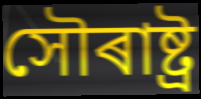
সৌৰাষ্ট্ৰ